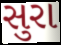
સુરા